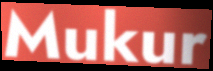
Mukur